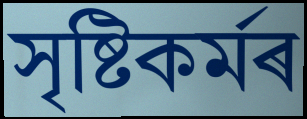
সৃষ্টিকৰ্মৰ